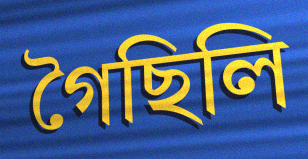
গৈছিলি